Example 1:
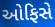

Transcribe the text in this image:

ઓફિસે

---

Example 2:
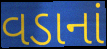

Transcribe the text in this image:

વડાનાં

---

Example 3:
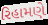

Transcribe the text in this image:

રિહામણે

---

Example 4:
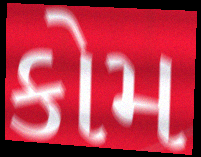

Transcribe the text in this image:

કોમ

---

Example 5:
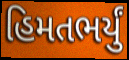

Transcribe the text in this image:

હિમતભર્યું